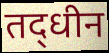
तद्धीन